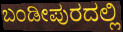
ಬಂಡೀಪುರದಲ್ಲಿ